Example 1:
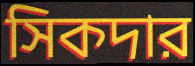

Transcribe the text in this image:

সিকদার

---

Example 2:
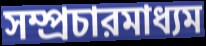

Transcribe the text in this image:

সম্প্রচারমাধ্যম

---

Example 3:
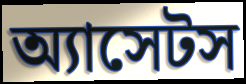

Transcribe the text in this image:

অ্যাসেটস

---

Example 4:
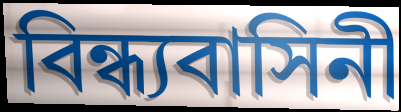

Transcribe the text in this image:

বিন্ধ্যবাসিনী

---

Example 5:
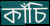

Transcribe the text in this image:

কাঁচি